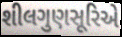
શીલગુણસૂરિએ